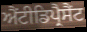
ਐਂਟੀਡਿਪ੍ਰੈਸੈਂਟ